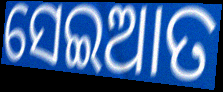
ସେଇଆତ